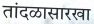
तांदळासारखा